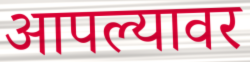
आपल्यावर